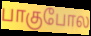
பாகுபோல